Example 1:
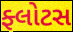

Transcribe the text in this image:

ફ્લોટસ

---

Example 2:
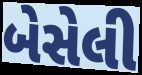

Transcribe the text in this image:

બેસેલી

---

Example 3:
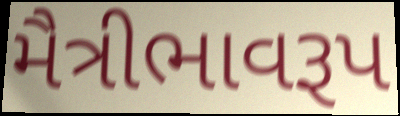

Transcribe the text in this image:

મૈત્રીભાવરૂપ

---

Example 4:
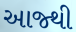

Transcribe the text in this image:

આજ્થી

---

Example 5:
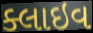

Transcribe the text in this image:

ક્લાઇવ